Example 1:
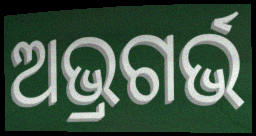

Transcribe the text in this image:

ଅଭ୍ରଗର୍ଭ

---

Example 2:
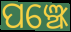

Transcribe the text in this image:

ପଞ୍ଝେ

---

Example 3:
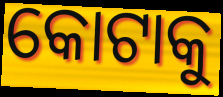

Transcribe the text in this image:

କୋଟାକୁ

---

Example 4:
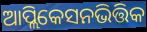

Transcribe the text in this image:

ଆପ୍ଲିକେସନଭିତ୍ତିକ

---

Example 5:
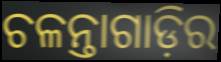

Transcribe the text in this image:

ଚଳନ୍ତାଗାଡ଼ିର